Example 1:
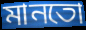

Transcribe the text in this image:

মানতো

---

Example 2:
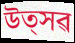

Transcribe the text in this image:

উত্সৱ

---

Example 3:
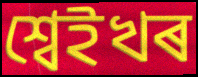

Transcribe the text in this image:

শ্বেইখৰ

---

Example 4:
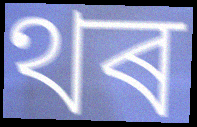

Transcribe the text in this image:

থৰ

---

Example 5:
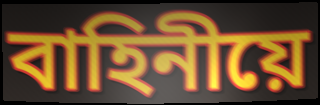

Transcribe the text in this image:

বাহিনীয়ে